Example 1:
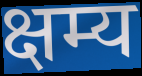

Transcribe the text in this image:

क्षम्य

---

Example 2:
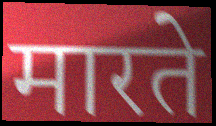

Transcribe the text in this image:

मारते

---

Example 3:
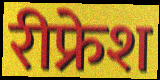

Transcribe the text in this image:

रीफ्रेश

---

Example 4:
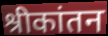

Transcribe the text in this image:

श्रीकांतन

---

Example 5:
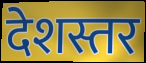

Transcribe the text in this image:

देशस्तर